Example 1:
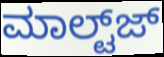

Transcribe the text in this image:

ಮಾಲ್ಟ್‌ಜ್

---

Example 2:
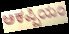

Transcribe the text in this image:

ಅಕಪ್ಪಿಯಂ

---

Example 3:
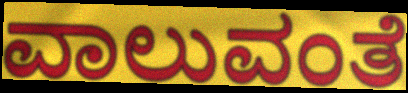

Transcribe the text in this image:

ವಾಲುವಂತೆ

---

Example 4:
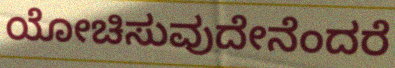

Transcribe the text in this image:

ಯೋಚಿಸುವುದೇನೆಂದರೆ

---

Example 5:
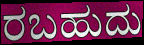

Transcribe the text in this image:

ರಬಹುದು